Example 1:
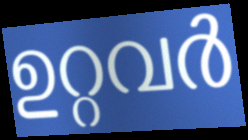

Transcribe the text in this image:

ഉറ്റവർ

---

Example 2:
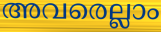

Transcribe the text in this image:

അവരെല്ലാം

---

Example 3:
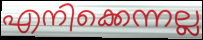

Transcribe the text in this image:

എനിക്കെന്നല്ല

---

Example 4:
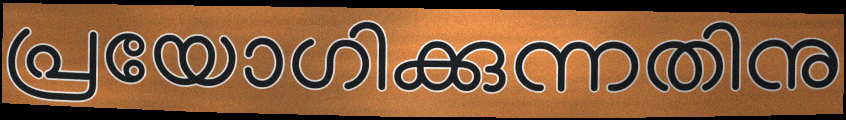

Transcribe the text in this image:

പ്രയോഗിക്കുന്നതിനു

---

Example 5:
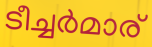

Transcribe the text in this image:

ടീച്ചർമാര്